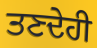
ਤਣਦੇਹੀ